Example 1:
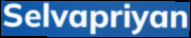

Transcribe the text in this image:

Selvapriyan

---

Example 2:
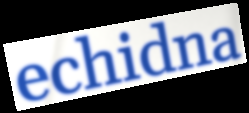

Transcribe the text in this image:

echidna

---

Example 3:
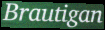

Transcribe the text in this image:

Brautigan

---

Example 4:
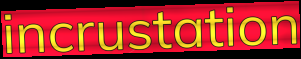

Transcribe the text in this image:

incrustation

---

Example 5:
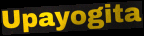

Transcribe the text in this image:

Upayogita